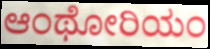
ಆಂಥೋರಿಯಂ